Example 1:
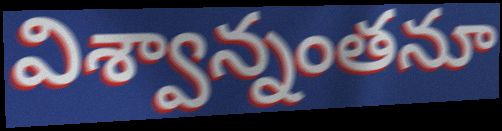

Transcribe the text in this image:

విశ్వాన్నంతనూ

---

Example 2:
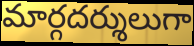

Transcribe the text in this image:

మార్గదర్శులుగా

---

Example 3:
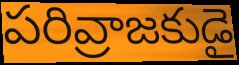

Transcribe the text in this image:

పరివ్రాజకుడై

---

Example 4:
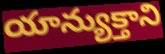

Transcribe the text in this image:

యాన్యుక్తాని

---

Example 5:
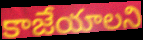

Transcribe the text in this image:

కాజేయాలని